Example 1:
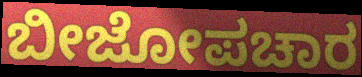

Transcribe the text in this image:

ಬೀಜೋಪಚಾರ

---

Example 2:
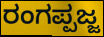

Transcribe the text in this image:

ರಂಗಪ್ಪಜ್ಜ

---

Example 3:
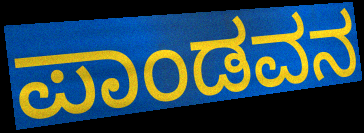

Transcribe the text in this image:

ಪಾಂಡವನ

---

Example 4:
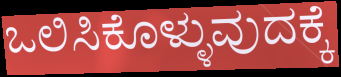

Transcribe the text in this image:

ಒಲಿಸಿಕೊಳ್ಳುವುದಕ್ಕೆ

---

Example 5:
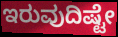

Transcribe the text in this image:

ಇರುವುದಿಷ್ಟೇ